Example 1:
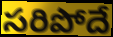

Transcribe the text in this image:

సరిపోదే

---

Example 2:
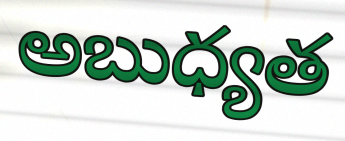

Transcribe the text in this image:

అబుధ్యత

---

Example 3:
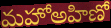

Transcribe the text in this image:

మహోఅహిణో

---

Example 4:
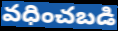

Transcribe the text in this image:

వధించబడి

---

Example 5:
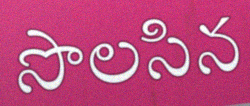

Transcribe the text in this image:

సొలసిన